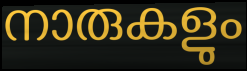
നാരുകളും